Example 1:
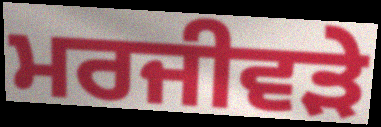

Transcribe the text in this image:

ਮਰਜੀਵੜੇ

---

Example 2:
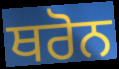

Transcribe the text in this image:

ਥਰੋਨ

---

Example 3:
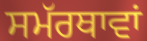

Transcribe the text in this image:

ਸਮੱਰਥਾਵਾਂ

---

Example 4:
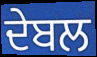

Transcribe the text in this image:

ਦੇਬਲ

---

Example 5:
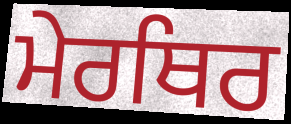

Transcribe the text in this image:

ਮੇਰਥਿਰ